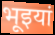
भूइयां